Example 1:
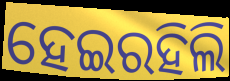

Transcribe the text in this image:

ହେଇରହିଲି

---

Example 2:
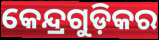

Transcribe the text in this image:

କେନ୍ଦ୍ରଗୁଡ଼ିକର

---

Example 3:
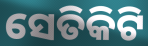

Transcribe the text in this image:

ସେତିକିଟି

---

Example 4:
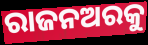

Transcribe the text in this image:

ରାଜନଅରକୁ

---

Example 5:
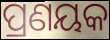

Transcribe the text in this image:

ପ୍ରଣୟକ